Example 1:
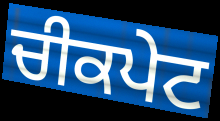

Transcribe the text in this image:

ਚੀਕਪੇਟ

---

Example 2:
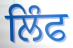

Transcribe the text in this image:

ਲਿੰਫ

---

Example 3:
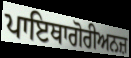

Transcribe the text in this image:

ਪਾਇਥਾਗੋਰੀਅਨਜ਼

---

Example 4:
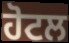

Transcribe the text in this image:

ਹੋਟਲ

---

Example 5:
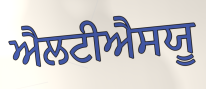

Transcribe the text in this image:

ਐਲਟੀਐਸਯੂ